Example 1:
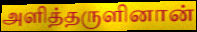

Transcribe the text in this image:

அளித்தருளினான்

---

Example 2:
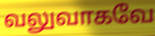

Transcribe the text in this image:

வலுவாகவே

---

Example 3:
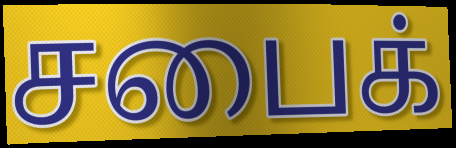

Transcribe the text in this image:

சபைக்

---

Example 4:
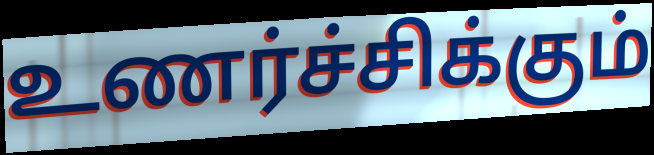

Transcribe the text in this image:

உணர்ச்சிக்கும்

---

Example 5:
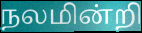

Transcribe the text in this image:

நலமின்றி